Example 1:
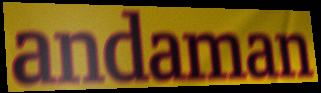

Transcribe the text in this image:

andaman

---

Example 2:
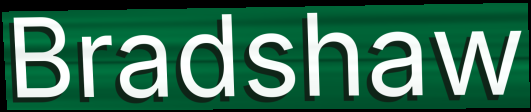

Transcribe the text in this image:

Bradshaw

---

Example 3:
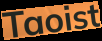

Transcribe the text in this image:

Taoist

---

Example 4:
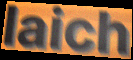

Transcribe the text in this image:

laich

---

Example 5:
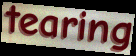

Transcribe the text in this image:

tearing